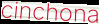
cinchona